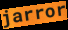
jarror